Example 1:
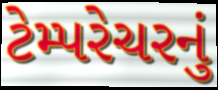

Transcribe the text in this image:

ટેમ્પરેચરનું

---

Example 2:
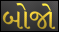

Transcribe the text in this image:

બોજો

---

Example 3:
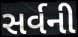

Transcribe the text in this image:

સર્વની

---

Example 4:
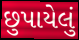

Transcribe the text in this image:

છુપાયેલું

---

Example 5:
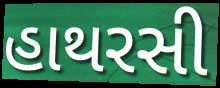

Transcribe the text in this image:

હાથરસી